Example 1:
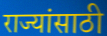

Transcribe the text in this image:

राज्यांसाठी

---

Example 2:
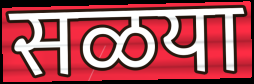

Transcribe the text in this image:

सळया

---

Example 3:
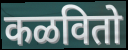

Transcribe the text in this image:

कळवितो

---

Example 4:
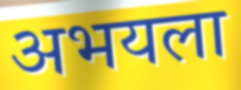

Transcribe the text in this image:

अभयला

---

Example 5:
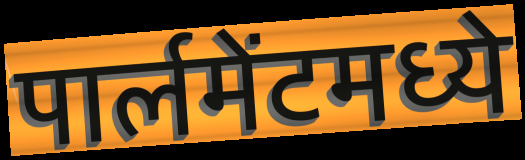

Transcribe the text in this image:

पार्लमेंटमध्ये